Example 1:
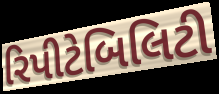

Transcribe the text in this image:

રિપીટેબિલિટી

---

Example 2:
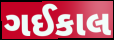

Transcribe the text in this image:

ગઈકાલ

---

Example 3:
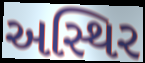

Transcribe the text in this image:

અસ્થિર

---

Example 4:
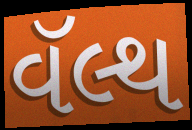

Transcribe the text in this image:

વૅલ્થ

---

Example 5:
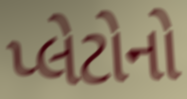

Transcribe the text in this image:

પ્લેટોનો